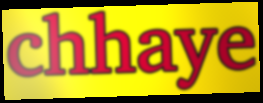
chhaye